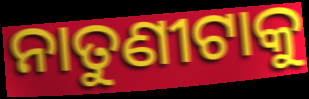
ନାତୁଣୀଟାକୁ